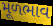
મૂળભાવ